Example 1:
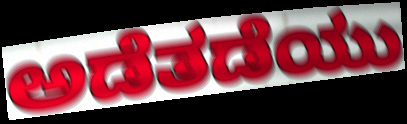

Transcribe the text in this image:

ಅಡೆತಡೆಯು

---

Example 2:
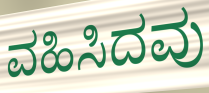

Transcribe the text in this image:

ವಹಿಸಿದವು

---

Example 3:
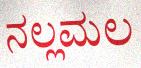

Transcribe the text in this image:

ನಲ್ಲಮಲ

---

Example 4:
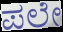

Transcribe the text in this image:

ಪಲೇ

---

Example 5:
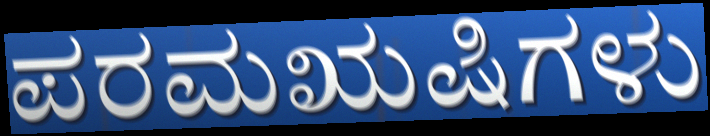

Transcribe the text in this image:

ಪರಮಋಷಿಗಳು